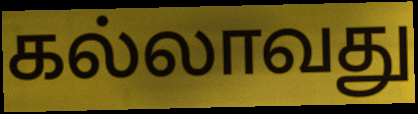
கல்லாவது